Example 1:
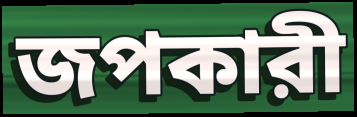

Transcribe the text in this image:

জপকারী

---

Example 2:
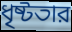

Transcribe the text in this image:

ধৃষ্টতার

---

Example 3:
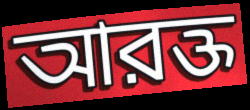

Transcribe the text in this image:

আরক্ত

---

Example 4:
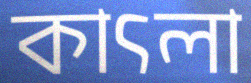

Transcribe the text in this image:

কাৎলা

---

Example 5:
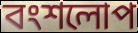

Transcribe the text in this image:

বংশলোপ